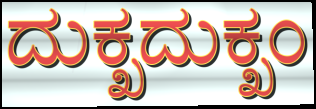
ದುಕ್ಖದುಕ್ಖಂ